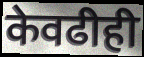
केवढीही